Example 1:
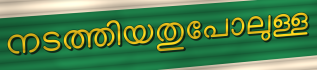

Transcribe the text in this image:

നടത്തിയതുപോലുള്ള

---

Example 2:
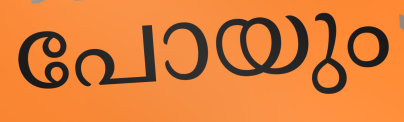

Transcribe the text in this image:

പോയും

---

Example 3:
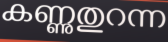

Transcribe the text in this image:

കണ്ണുതുറന്ന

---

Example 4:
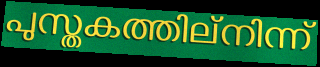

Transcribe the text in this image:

പുസ്തകത്തില്നിന്ന്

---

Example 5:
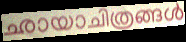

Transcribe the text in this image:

ഛായാചിത്രങ്ങൾ